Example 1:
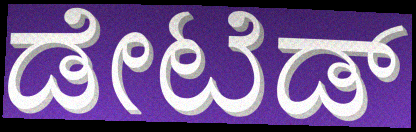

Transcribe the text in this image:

ಡೇಟೆಡ್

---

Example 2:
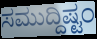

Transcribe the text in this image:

ಸಮುದ್ದಿಷ್ಟಂ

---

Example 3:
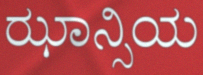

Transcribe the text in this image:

ಝಾನ್ಸಿಯ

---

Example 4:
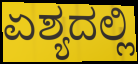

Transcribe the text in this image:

ಏಶ್ಯದಲ್ಲಿ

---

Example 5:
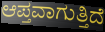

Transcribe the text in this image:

ಆಪ್ತವಾಗುತ್ತಿದೆ